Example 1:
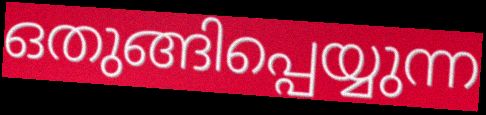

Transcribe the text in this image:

ഒതുങ്ങിപ്പെയ്യുന്ന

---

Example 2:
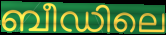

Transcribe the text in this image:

ബീഡിലെ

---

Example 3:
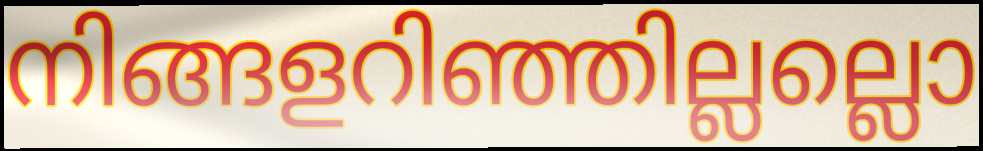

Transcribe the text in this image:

നിങ്ങളറിഞ്ഞില്ലല്ലൊ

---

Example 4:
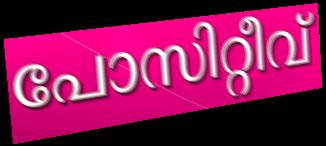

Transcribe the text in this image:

പോസിറ്റീവ്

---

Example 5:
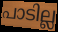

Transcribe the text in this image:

പാടില്ല